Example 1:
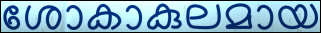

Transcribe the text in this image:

ശോകാകുലമായ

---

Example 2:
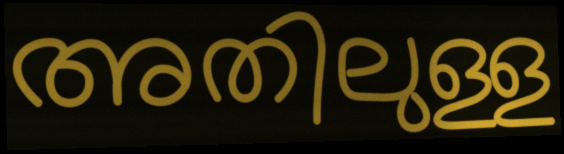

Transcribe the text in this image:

അതിലുള്ള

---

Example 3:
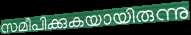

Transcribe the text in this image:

സമീപിക്കുകയായിരുന്നു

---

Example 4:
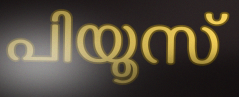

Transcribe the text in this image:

പിയൂസ്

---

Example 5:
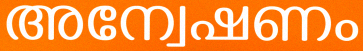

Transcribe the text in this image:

അന്വേഷണം